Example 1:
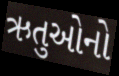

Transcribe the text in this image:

ઋતુઓનો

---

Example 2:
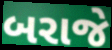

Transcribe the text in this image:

બરાજે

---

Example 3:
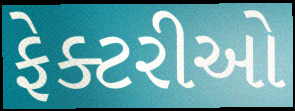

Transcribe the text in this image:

ફેક્ટરીઓ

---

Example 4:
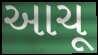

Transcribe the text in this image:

આચૂ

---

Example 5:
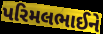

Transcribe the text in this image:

પરિમલભાઈને